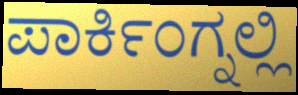
ಪಾರ್ಕಿಂಗ್ನಲ್ಲಿ